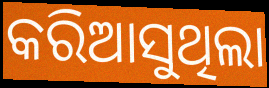
କରିଆସୁଥିଲା